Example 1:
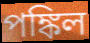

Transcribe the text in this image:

পঙ্কিল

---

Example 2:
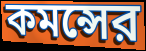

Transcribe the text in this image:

কমন্সের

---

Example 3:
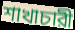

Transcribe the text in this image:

শাখাচারী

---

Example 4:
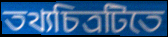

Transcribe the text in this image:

তথ্যচিত্রটিতে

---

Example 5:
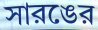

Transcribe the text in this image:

সারঙের